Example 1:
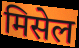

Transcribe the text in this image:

मिसेल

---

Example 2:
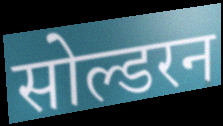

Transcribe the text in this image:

सोल्डरन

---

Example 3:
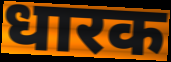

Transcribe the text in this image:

धारक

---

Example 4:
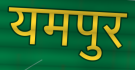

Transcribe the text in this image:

यमपुर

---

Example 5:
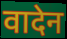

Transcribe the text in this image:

वादेन